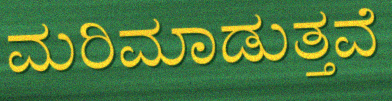
ಮರಿಮಾಡುತ್ತವೆ